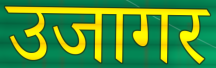
उजागर